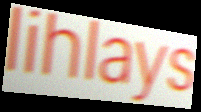
lihlays